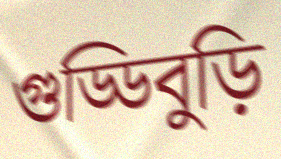
গুড্ডিবুড়ি